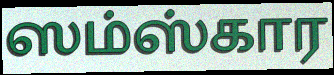
ஸம்ஸ்கார